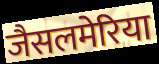
जैसलमेरिया